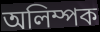
অলিম্পক